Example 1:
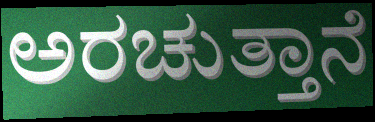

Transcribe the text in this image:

ಅರಚುತ್ತಾನೆ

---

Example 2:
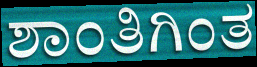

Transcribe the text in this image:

ಶಾಂತಿಗಿಂತ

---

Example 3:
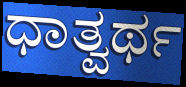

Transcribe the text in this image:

ಧಾತ್ವರ್ಥ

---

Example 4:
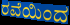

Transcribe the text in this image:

ರವೆಯಿಂದ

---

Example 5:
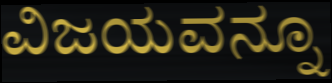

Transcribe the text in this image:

ವಿಜಯವನ್ನೂ